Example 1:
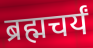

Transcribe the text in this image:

ब्रह्मचर्यं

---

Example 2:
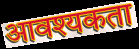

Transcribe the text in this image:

आवश्‍यकता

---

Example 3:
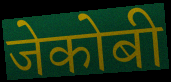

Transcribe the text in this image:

जेकोबी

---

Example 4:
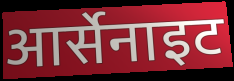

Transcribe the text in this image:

आर्सेनाइट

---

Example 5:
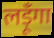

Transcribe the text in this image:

लड़ूँगा